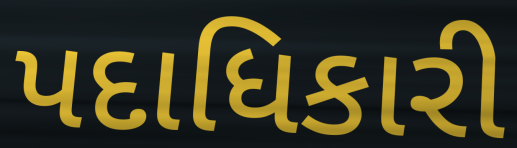
પદાધિકારી